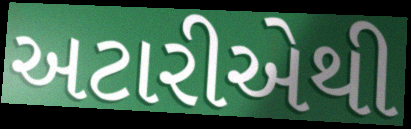
અટારીએથી